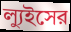
ল্যুইসের